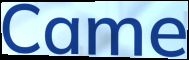
Came